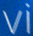
vi